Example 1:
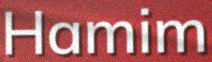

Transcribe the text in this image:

Hamim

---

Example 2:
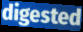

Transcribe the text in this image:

digested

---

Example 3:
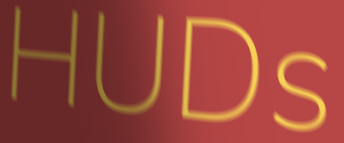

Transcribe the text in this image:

HUDs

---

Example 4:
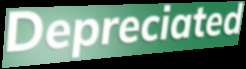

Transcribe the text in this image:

Depreciated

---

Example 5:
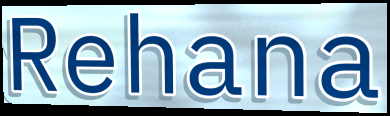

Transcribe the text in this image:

Rehana